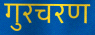
गुरचरण